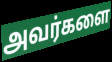
அவர்களை